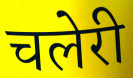
चलेरी